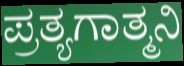
ಪ್ರತ್ಯಗಾತ್ಮನಿ